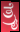
ತ್ರೈ